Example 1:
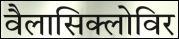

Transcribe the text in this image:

वैलासिक्लोविर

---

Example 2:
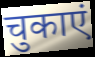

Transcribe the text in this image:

चुकाएं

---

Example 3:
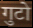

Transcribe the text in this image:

गुटो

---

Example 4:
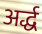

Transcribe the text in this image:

अर्द्ध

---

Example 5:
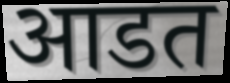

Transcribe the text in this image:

आडत